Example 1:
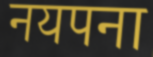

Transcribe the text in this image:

नयपना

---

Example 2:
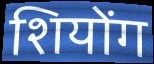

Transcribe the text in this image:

शियोंग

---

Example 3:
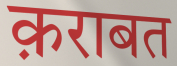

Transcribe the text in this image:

क़राबत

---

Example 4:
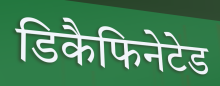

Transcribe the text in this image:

डिकैफिनेटेड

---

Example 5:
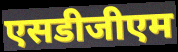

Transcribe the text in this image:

एसडीजीएम